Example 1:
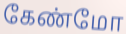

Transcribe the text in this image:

கேண்மோ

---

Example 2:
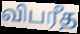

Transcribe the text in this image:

விபரீத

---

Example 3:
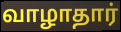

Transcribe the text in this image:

வாழாதார்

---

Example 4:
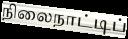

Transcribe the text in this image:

நிலைநாட்டிப்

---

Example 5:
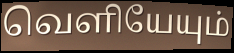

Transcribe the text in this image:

வெளியேயும்